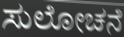
ಸುಲೋಚನೆ